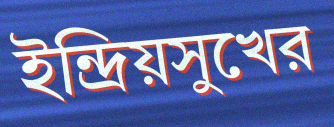
ইন্দ্রিয়সুখের